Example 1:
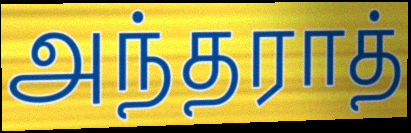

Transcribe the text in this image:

அந்தராத்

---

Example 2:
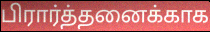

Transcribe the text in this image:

பிரார்த்தனைக்காக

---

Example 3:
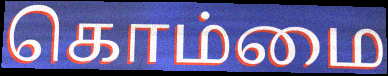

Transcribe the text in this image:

கொம்மை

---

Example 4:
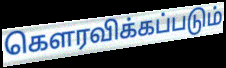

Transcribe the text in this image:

கௌரவிக்கப்படும்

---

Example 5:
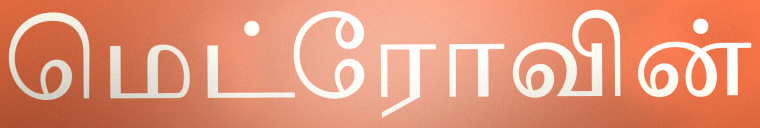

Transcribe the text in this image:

மெட்ரோவின்